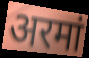
अरमां